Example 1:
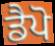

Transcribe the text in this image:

ਡੈਪੋ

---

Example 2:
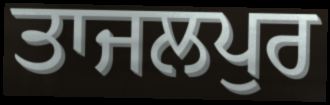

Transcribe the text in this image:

ਤਾਜਲਪੁਰ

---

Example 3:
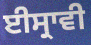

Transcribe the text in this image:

ਈਸ੍ਰਾਵੀ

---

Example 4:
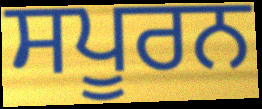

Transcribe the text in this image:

ਸਪੂਰਨ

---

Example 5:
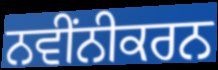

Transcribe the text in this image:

ਨਵੀਂਨੀਕਰਨ